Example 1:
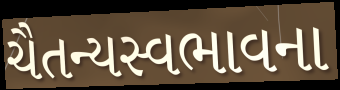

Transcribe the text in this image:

ચૈતન્યસ્વભાવના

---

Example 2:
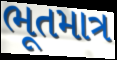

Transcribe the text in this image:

ભૂતમાત્ર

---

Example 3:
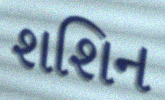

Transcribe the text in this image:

શશિન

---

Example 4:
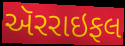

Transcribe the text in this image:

ઍરરાઇફલ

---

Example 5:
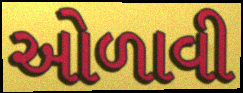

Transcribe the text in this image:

ઓળાવી